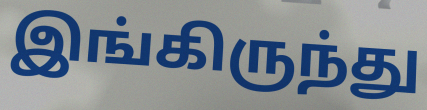
இங்கிருந்து